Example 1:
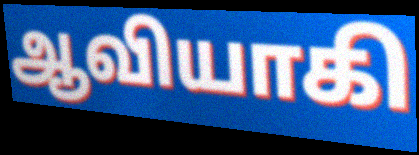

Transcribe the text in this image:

ஆவியாகி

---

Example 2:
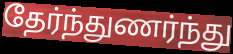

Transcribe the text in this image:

தேர்ந்துணர்ந்து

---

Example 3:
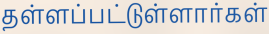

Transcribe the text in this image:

தள்ளப்பட்டுள்ளார்கள்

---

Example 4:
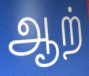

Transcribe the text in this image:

ஆற்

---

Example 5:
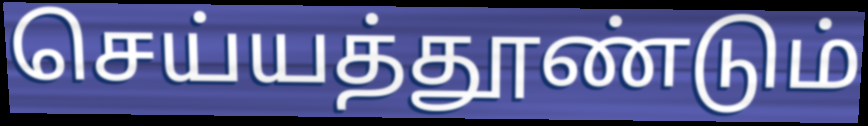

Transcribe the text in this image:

செய்யத்தூண்டும்